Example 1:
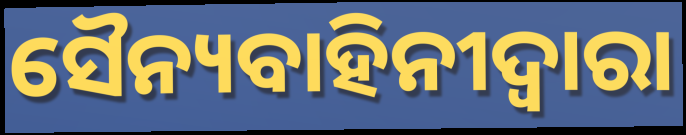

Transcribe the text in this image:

ସୈନ୍ୟବାହିନୀଦ୍ୱାରା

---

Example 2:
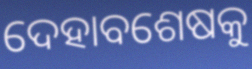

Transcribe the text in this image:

ଦେହାବଶେଷକୁ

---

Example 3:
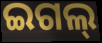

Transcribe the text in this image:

ଇଗଲ୍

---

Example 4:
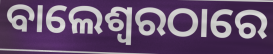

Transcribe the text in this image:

ବାଲେଶ୍ଵରଠାରେ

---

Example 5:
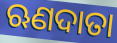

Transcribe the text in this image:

ଋଣଦାତା